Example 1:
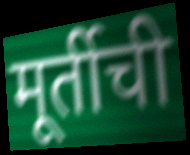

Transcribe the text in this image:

मूर्तीची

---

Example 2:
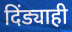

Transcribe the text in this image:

दिंड्याही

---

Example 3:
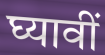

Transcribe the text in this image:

घ्यावीं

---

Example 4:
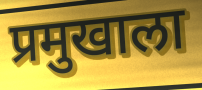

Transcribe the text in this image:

प्रमुखाला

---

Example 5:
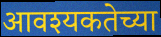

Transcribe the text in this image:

आवश्यकतेच्या